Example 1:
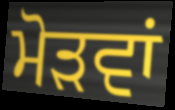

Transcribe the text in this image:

ਮੋੜਵਾਂ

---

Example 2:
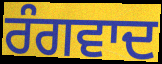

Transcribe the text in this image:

ਰੰਗਵਾਦ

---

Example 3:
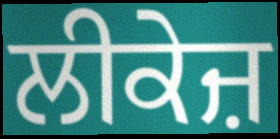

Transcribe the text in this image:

ਲੀਕੇਜ਼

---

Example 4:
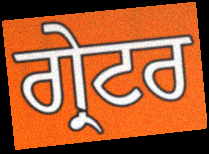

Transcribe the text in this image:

ਗ੍ਰੇਟਰ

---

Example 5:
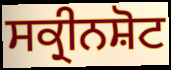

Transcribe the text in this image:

ਸਕ੍ਰੀਨਸ਼ੋਟ